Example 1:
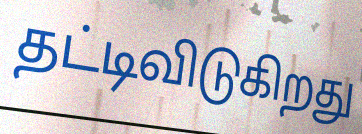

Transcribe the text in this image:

தட்டிவிடுகிறது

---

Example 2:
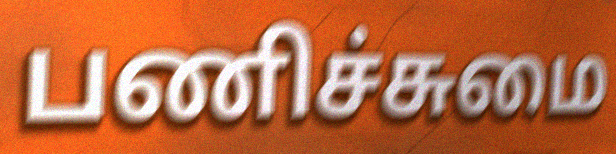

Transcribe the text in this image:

பணிச்சுமை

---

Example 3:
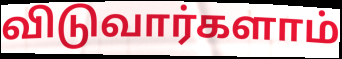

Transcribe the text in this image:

விடுவார்களாம்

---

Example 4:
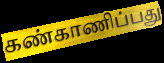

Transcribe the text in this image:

கண்காணிப்பது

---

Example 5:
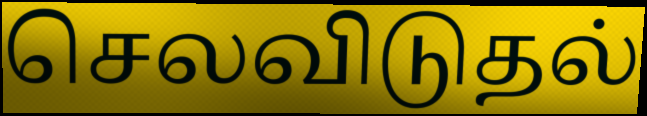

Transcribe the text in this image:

செலவிடுதல்